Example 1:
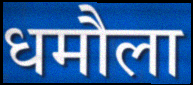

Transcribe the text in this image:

धमौला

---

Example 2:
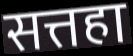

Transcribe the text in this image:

सत्तहा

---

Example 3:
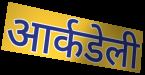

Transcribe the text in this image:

आर्कडेली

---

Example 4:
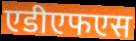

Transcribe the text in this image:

एडीएफएस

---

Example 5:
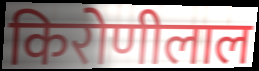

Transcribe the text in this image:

किरोणीलाल